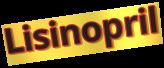
Lisinopril